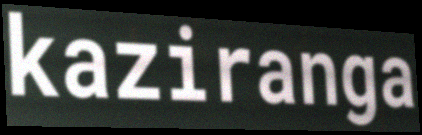
kaziranga